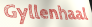
Gyllenhaal